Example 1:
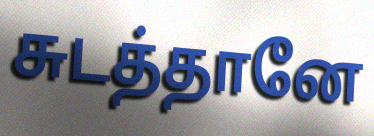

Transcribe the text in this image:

சுடத்தானே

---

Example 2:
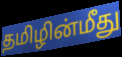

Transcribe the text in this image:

தமிழின்மீது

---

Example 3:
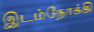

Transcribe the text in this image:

இடம்நோக்கி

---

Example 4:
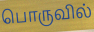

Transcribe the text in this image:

பொருவில்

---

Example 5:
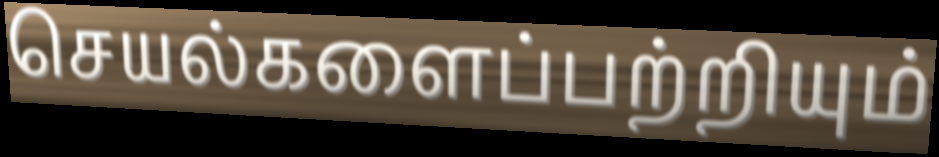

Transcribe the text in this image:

செயல்களைப்பற்றியும்